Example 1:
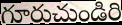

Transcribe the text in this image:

గూరుచుండిరి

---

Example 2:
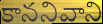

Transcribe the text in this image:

కాననివాని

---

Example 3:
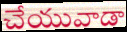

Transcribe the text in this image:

చేయువాడా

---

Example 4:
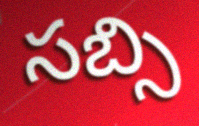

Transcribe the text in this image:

సబ్సి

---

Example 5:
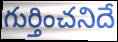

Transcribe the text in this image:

గుర్తించనిదే